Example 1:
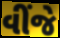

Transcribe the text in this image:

વીંજે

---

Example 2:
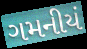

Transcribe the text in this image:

ગમનીયં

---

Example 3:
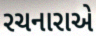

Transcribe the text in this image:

રચનારાએ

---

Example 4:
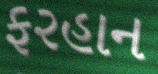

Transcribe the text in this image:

ફરહાન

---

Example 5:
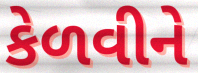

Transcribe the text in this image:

કેળવીને